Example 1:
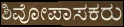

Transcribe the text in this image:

ಶಿವೋಪಾಸಕರು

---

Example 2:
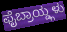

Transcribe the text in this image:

ಫೈಬ್ರಾಯ್ಡ್ಗಳು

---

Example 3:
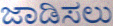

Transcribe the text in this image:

ಜಾಡಿಸಲು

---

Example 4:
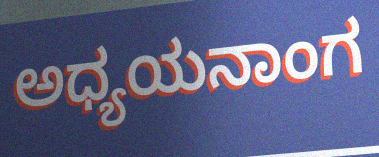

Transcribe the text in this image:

ಅಧ್ಯಯನಾಂಗ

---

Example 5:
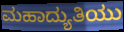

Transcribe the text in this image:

ಮಹಾದ್ಯುತಿಯು